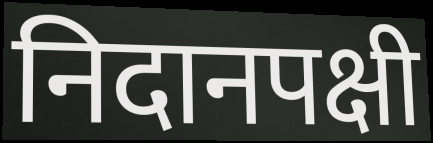
निदानपक्षी